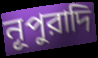
নূপুরাদি